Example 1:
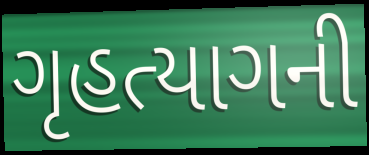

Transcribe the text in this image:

ગૃહત્યાગની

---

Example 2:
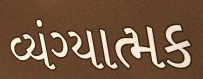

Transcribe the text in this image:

વ્યંગ્યાત્મક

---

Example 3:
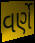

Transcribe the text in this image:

વર્ણે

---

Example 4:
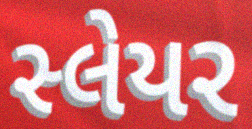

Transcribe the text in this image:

સ્લેયર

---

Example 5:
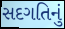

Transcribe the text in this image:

સદગતિનું